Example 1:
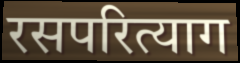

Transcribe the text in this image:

रसपरित्याग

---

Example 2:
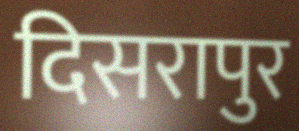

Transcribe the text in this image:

दिसरापुर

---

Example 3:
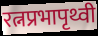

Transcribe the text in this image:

रत्नप्रभापृथ्वी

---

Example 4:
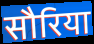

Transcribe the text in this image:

सौरिया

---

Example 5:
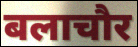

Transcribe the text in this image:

बलाचौर